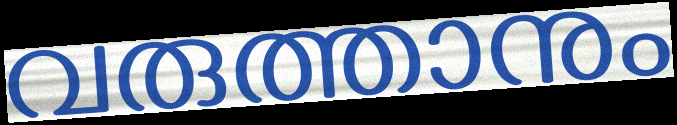
വരുത്താനും